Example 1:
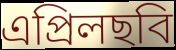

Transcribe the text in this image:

এপ্রিলছবি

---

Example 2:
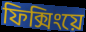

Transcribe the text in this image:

ফিক্সিংয়ে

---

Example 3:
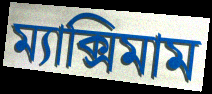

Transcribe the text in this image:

ম্যাক্সিমাম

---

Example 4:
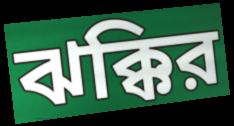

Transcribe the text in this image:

ঝক্কির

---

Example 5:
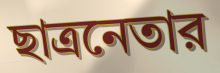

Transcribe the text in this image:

ছাত্রনেতার